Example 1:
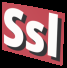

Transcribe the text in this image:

Ssl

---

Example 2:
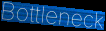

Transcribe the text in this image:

Bottleneck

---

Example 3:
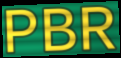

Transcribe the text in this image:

PBR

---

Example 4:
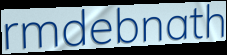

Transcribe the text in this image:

rmdebnath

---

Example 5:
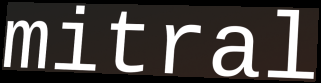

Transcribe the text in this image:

mitral